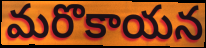
మరొకాయన